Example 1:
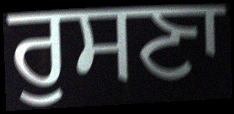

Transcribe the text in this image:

ਰੁਸਣਾ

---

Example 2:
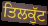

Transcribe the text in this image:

ਤਿਲਕੁੱਟ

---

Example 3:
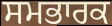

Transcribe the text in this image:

ਸਮਭਾਰਕ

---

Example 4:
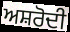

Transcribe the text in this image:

ਅਸ਼ਰੋਦੀ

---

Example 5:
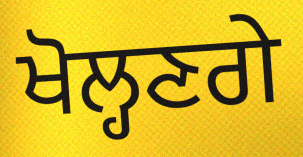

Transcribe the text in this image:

ਖੋਲ੍ਹਣਗੇ